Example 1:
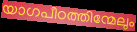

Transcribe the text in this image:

യാഗപീഠത്തിന്മേലും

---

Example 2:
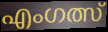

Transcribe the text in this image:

എംഗത്സ്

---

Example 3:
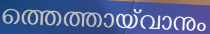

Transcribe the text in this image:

ത്തെത്തായ്‌വാനും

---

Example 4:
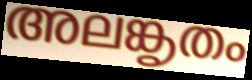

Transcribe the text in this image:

അലങ്കൃതം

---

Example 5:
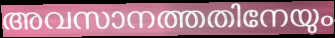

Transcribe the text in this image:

അവസാനത്തതിനേയും